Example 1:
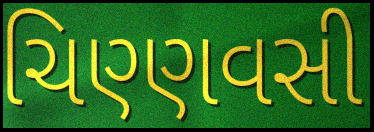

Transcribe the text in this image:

ચિણ્ણવસી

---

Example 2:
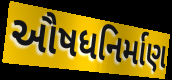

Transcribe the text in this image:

ઔષધનિર્માણ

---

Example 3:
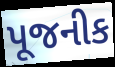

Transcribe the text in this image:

પૂજનીક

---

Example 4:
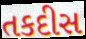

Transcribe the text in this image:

તકદીસ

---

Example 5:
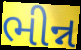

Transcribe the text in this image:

ભીન્ન